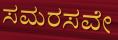
ಸಮರಸವೇ